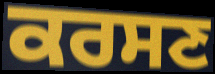
ਕਰਸਣ